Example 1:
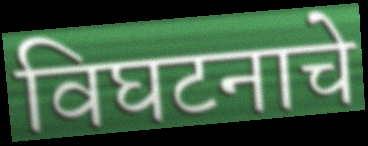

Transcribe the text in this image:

विघटनाचे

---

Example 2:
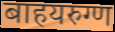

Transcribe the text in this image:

बाहयरुग्ण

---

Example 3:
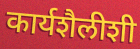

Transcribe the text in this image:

कार्यशैलीशी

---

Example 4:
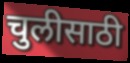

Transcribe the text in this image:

चुलीसाठी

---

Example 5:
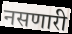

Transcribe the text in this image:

नसणारी